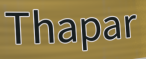
Thapar